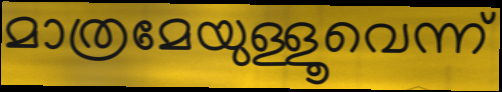
മാത്രമേയുള്ളൂവെന്ന്